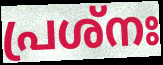
പ്രശ്നഃ